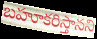
బహూకరిస్తానని